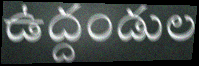
ఉద్దండుల